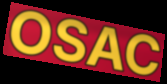
OSAC